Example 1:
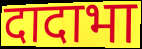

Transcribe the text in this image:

दादाभा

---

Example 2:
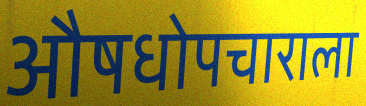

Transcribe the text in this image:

औषधोपचाराला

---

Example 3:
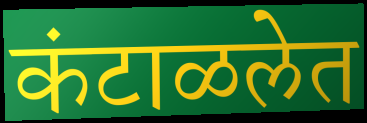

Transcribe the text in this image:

कंटाळलेत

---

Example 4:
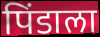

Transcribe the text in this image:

पिंडाला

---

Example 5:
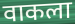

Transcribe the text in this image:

वाकला